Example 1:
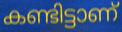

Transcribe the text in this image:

കണ്ടിട്ടാണ്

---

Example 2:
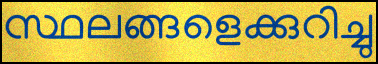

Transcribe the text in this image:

സ്ഥലങ്ങളെക്കുറിച്ചു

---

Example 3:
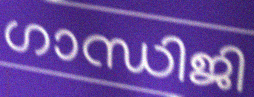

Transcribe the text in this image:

ഗാന്ധിജി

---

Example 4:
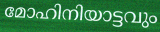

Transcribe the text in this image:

മോഹിനിയാട്ടവും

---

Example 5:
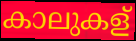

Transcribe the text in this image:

കാലുകള്